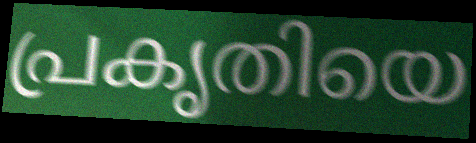
പ്രകൃതിയെ